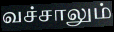
வச்சாலும்